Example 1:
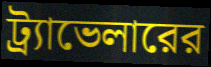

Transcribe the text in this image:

ট্র্যাভেলারের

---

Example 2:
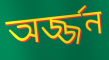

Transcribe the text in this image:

অর্জ্জন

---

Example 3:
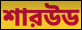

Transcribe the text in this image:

শারউড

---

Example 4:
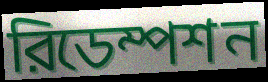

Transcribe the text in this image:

রিডেম্পশন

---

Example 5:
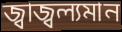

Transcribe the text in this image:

জ্বাজ্বল্যমান